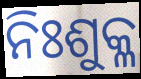
ନିଃଶୁକ୍ଳ